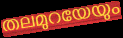
തലമുറയേയും